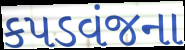
કપડવંજના